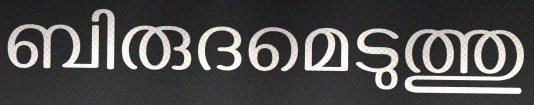
ബിരുദമെടുത്തു